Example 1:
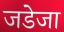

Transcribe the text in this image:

जडेजा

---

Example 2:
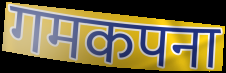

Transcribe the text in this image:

गमकपना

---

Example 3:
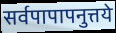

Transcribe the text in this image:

सर्वपापापनुत्तये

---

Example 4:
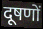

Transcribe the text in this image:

दूषणों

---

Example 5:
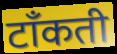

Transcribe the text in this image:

टाँकती